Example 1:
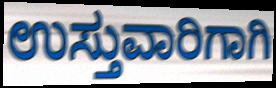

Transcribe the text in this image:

ಉಸ್ತುವಾರಿಗಾಗಿ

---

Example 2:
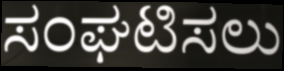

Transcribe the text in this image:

ಸಂಘಟಿಸಲು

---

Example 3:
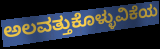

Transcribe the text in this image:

ಅಲವತ್ತುಕೊಳ್ಳುವಿಕೆಯ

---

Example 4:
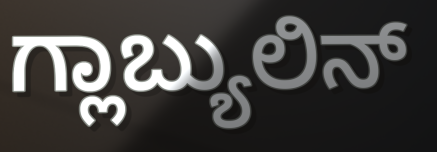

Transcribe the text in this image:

ಗ್ಲಾಬ್ಯುಲಿನ್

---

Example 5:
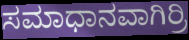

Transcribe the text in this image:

ಸಮಾಧಾನವಾಗಿರ್ರಿ